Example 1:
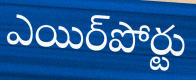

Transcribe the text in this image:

ఎయిర్‌పోర్టు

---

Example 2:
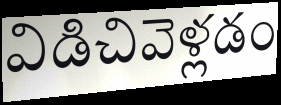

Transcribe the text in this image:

విడిచివెళ్లడం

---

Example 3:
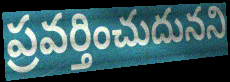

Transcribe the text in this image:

ప్రవర్తించుదునని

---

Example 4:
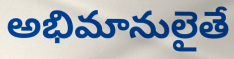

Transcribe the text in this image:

అభిమానులైతే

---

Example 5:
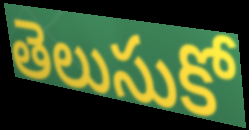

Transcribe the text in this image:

తెలుసుకో